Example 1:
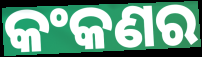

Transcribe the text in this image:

କଂକଣର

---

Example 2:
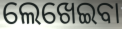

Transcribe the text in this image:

ଲେଖେଇବା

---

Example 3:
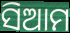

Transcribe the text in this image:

ସିଆମ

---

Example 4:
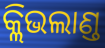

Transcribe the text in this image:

କ୍ଲିଭଲାଣ୍ଡ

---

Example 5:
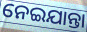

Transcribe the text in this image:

ନେଇଯାନ୍ତା